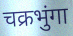
चक्रभुंगा